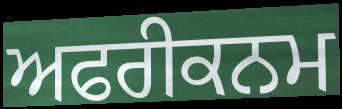
ਅਫਰੀਕਨਮ